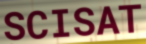
SCISAT